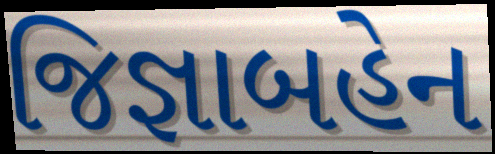
જિજ્ઞાબહેન